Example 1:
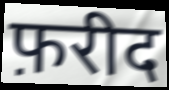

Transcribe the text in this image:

फ़रीद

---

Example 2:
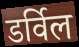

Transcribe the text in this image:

डर्विल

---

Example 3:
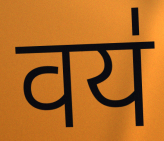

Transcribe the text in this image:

वय॑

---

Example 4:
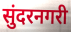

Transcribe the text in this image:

सुंदरनगरी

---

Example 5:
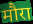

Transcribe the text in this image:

मौरा